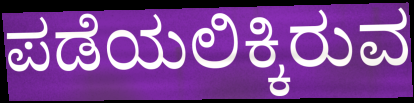
ಪಡೆಯಲಿಕ್ಕಿರುವ